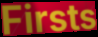
Firsts